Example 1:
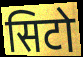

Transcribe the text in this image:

सिटो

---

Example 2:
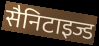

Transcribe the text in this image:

सैनिटाइज्ड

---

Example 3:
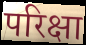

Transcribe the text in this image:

परिक्षा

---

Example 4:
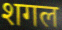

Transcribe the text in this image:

शगल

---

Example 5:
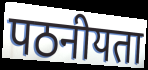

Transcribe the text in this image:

पठनीयता